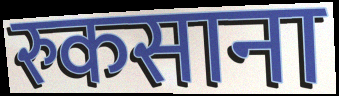
रुकसाना